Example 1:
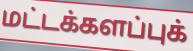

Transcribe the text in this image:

மட்டக்களப்புக்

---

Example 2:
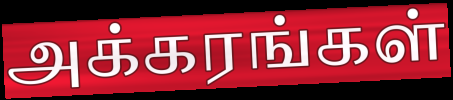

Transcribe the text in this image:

அக்கரங்கள்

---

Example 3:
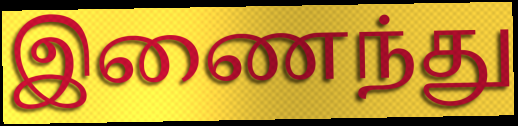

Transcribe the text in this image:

இணைந்து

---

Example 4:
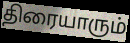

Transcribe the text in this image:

திரையாரும்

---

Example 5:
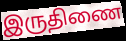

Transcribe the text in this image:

இருதிணை